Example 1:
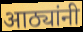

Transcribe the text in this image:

आठ्यांनी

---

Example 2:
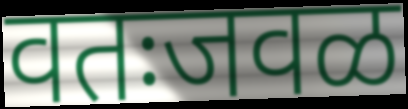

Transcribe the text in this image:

वतःजवळ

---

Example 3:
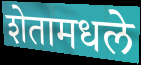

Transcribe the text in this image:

शेतामधले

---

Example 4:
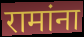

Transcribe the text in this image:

रामांना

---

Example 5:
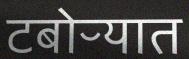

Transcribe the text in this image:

टबोऱ्यात